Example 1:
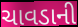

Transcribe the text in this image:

ચાવડાની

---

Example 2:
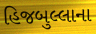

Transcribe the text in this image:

હિજબુલ્લાના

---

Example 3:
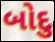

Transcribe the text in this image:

બોદુ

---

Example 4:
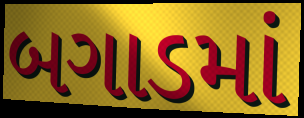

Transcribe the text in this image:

બગાડમાં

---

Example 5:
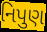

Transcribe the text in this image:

નિપુણ